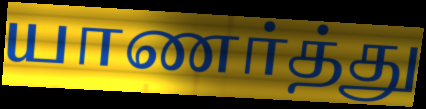
யாணர்த்து